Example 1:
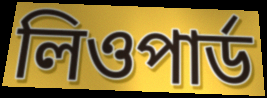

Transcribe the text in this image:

লিওপার্ড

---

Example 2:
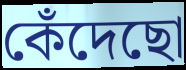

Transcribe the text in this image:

কেঁদেছো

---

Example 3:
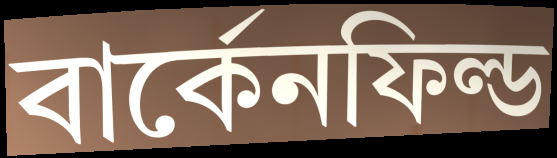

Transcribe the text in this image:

বার্কেনফিল্ড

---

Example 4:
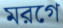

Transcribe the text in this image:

মরগে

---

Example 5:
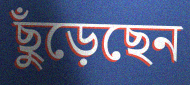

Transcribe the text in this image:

ছুঁড়েছেন